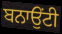
ਬਨਾਉਂਟੀ